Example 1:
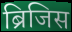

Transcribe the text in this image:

ब्रिजिस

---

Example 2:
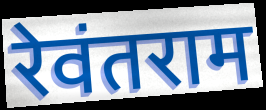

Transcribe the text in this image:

रेवंतराम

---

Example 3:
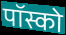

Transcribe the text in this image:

पॉस्को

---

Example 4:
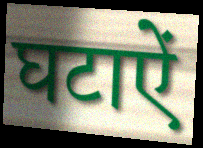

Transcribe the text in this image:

घटाऐं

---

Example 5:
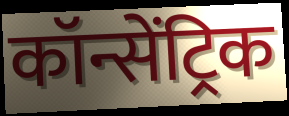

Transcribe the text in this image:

कॉन्सेंट्रिक